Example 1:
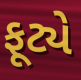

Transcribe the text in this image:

ફૂટ્યે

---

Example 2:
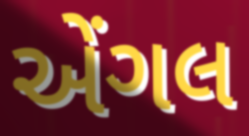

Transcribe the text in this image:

એંગલ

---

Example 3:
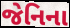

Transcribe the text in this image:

જેનિના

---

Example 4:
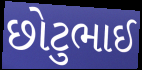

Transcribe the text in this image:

છોટુભાઈ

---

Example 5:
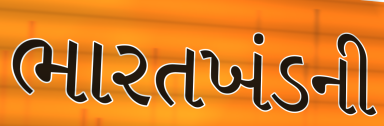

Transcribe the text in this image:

ભારતખંડની